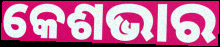
କେଶଭାର